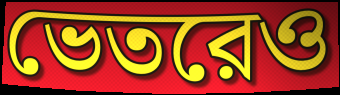
ভেতরেও